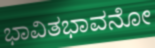
ಭಾವಿತಭಾವನೋ